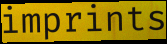
imprints